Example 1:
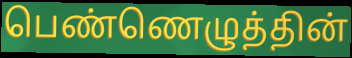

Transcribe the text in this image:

பெண்ணெழுத்தின்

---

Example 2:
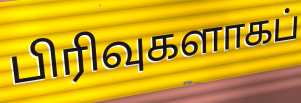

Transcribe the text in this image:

பிரிவுகளாகப்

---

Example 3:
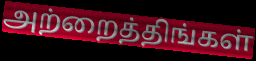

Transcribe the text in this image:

அற்றைத்திங்கள்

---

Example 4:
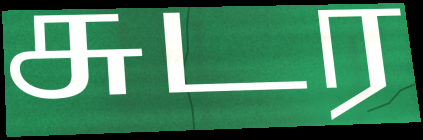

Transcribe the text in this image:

சுடர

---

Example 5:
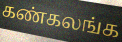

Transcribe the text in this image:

கண்கலங்க